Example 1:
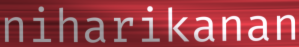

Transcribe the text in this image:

niharikanan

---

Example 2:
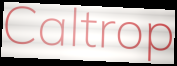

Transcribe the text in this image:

Caltrop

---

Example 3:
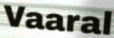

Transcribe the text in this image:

Vaaral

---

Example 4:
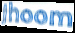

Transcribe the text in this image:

Jhoom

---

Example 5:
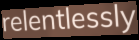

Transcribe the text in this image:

relentlessly